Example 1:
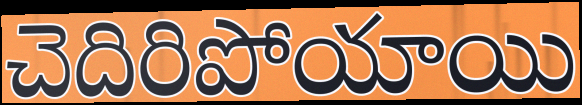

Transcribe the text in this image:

చెదిరిపోయాయి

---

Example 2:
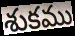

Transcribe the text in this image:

శుకము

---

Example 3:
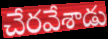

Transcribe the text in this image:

చేరవేశాడు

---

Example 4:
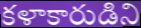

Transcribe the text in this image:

కళాకారుడిని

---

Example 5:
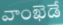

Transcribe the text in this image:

వాంఖెడే